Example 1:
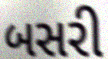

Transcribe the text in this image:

બસરી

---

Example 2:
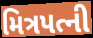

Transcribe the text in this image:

મિત્રપત્ની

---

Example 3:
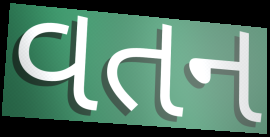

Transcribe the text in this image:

વતન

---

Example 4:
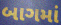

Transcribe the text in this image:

બાગમાં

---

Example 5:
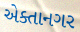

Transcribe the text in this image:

એક્તાનગર